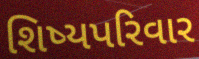
શિષ્યપરિવાર